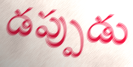
డప్పుడు